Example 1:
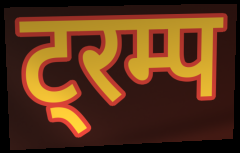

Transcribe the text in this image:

ट्रम्प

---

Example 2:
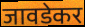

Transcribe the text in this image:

जावडेकर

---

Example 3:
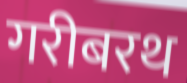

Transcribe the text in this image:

गरीबरथ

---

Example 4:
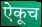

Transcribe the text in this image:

ऐकूच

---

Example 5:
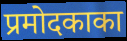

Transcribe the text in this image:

प्रमोदकाका